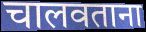
चालवताना